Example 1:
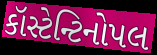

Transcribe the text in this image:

કૉસ્ટેન્ટિનોપલ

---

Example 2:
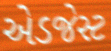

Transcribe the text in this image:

એડજેસ્ટ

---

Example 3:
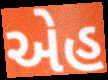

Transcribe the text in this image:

એહ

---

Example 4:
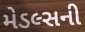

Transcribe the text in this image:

મેડલ્સની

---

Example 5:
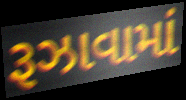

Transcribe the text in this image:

રૂઝાવામાં